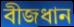
বীজধান